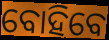
ବୋହିବେ